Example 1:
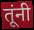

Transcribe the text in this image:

तूंनी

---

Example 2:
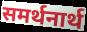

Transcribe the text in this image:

समर्थनार्थ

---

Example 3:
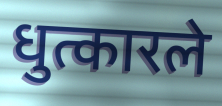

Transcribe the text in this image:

धुत्कारले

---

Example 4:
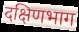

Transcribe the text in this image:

दक्षिणभाग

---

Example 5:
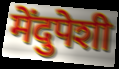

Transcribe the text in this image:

मेंदुपेशी